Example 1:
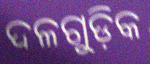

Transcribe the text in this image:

ଦଳଗୁଡ଼ିକ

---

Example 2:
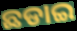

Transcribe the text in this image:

ଛଡାଇ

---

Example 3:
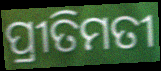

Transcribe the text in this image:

ପ୍ରୀତିମତୀ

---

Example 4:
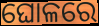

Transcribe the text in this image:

ଘୋଳରେ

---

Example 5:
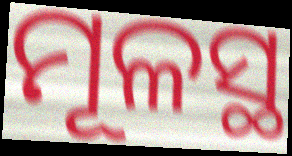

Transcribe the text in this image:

ମୂଳସ୍ଥ